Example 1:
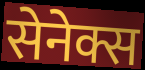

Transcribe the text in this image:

सेनेक्स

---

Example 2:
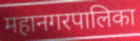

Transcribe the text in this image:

महानगरपालिका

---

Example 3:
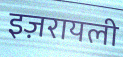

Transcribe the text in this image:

इज़रायली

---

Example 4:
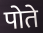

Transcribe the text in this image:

पोते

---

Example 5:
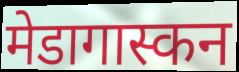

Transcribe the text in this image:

मेडागास्कन